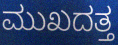
ಮುಖದತ್ತ